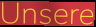
Unsere